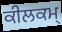
ਕੀਲਕਮ੍